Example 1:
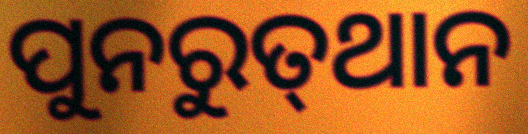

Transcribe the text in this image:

ପୁନରୁତ୍‍ଥାନ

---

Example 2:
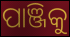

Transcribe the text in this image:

ପାଞ୍ଜିକୁ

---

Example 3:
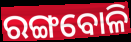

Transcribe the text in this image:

ରଙ୍ଗବୋଳି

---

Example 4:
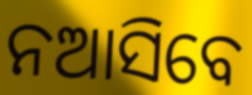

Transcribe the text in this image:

ନଆସିବେ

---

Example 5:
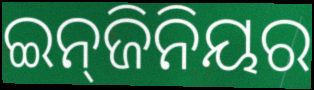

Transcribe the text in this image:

ଇନ୍‌ଜିନିୟର